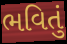
ભવિતું